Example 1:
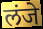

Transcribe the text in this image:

लंजे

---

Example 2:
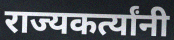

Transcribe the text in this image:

राज्यकर्त्यांनी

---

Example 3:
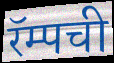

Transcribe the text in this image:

रॅम्पची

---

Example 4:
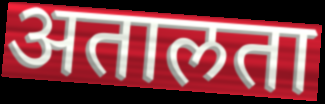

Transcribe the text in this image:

अतालता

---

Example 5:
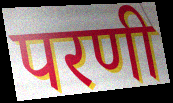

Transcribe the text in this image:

परणी